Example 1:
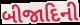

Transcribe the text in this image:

બીજાદિની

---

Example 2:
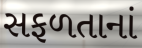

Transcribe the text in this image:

સફળતાનાં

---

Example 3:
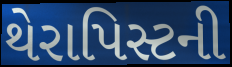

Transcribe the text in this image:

થેરાપિસ્ટની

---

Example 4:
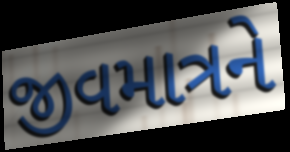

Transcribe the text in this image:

જીવમાત્રને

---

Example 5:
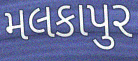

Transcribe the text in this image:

મલકાપુર